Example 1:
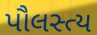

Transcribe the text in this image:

પૌલસ્ત્ય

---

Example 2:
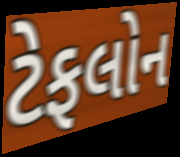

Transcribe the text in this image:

ટેફલોન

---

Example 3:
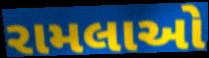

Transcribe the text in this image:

રામલાઓ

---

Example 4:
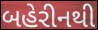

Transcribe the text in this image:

બહેરીનથી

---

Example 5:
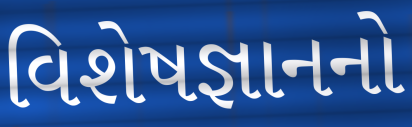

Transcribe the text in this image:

વિશેષજ્ઞાનનો